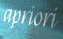
apriori